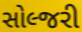
સોલ્જરી